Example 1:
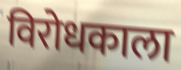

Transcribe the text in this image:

विरोधकाला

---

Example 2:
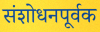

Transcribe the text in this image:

संशोधनपूर्वक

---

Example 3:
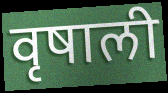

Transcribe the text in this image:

वृषाली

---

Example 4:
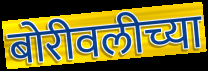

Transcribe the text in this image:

बोरीवलीच्या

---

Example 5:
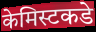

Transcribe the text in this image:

केमिस्टकडे